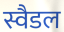
स्वैडल